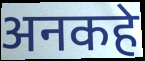
अनकहे